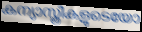
കന്യാസ്ത്രീകളുടെയോ